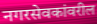
नगरसेवकांवरील